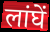
लांघें